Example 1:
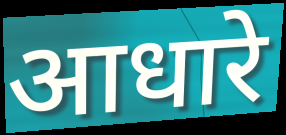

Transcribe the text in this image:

आधारे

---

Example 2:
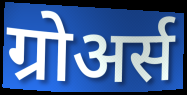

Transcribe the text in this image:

ग्रोअर्स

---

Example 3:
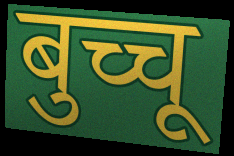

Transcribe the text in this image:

बुच्चू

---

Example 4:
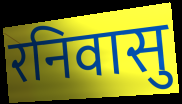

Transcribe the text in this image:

रनिवासु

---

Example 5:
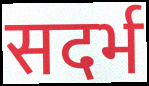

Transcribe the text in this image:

सदर्भ